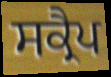
ਸਕ੍ਰੈਪ